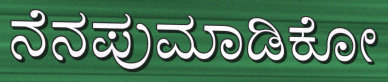
ನೆನಪುಮಾಡಿಕೋ